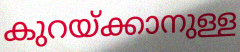
കുറയ്ക്കാനുള്ള